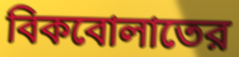
বিকবোলাতের